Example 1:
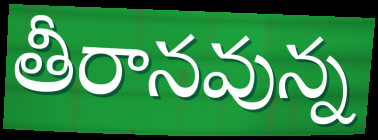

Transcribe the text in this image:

తీరానవున్న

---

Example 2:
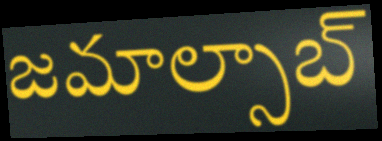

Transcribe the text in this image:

జమాల్సాబ్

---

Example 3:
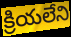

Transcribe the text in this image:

క్రియలేని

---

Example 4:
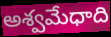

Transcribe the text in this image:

అశ్వమేధాది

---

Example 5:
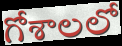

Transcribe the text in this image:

గోశాలలో